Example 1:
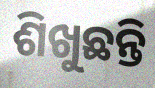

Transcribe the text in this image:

ଶିଖୁଛନ୍ତି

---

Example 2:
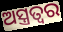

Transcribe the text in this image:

ଅସ୍ତ୍ରତ୍ୱର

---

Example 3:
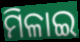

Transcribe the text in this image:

ମିଳାଇ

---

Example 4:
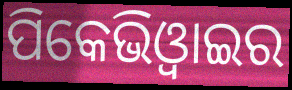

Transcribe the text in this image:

ପିକେଭିଓ୍ବାଇର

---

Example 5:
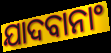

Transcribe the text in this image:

ଯାଦବାନାଂ